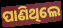
ପାଣିଥିଲେ